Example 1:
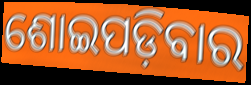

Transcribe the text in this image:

ଶୋଇପଡ଼ିବାର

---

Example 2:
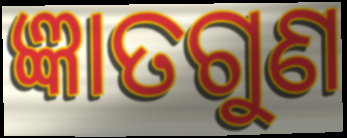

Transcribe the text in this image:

ଜ୍ଞାତଗୁଣ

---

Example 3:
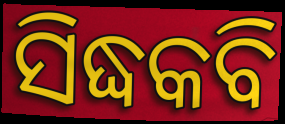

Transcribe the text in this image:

ସିଦ୍ଧକବି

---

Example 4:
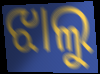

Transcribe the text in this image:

ଝାଲୁ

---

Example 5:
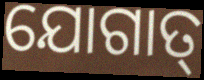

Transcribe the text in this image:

ଯୋଗାତ୍